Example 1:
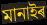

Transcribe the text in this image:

মানাইৰ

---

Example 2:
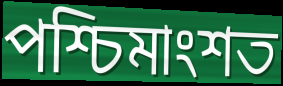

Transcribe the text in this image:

পশ্চিমাংশত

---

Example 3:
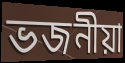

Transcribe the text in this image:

ভজনীয়া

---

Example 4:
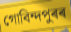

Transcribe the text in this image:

গোবিন্দপুৰৰ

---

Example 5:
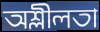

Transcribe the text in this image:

অশ্লীলতা